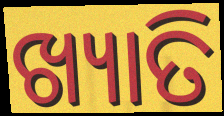
ଖ୍ଯାତି